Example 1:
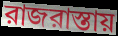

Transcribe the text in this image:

রাজরাস্তায়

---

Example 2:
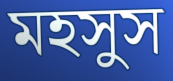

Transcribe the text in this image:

মহসুস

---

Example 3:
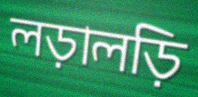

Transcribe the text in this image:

লড়ালড়ি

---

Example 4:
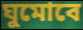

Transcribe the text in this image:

ঘুমোবে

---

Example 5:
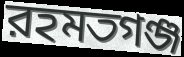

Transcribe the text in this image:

রহমতগঞ্জ